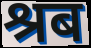
श्रब